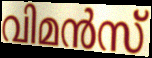
വിമൻസ്